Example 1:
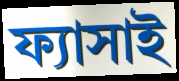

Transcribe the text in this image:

ফ্যাসাই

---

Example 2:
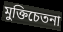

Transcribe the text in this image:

মুক্তিচেতনা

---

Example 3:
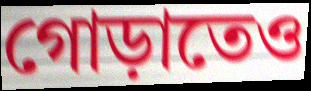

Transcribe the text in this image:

গোড়াতেও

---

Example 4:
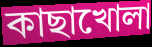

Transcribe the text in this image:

কাছাখোলা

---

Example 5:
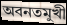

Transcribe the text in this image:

অবনতমুখী